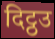
दिट्ठउ